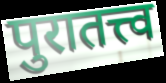
पुरातत्त्व